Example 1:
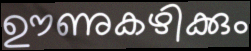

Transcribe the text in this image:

ഊണുകഴിക്കും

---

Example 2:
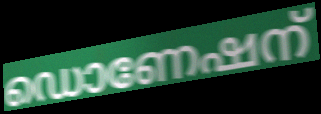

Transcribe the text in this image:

ഡൊണേഷന്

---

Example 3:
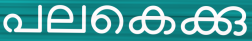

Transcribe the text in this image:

പലകെക്കു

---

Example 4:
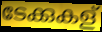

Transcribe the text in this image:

ടേക്കുകള്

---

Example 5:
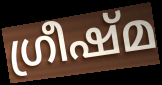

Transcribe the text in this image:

ഗ്രീഷ്മ